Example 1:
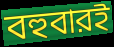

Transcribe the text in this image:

বহুবারই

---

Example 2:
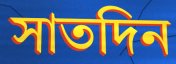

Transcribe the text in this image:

সাতদিন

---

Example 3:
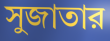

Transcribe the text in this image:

সুজাতার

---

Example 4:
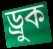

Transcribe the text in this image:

ড্রুক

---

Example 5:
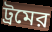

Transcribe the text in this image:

ট্রমের